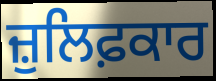
ਜ਼ੁਲਿਫ਼ਕਾਰ